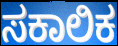
ಸಕಾಲಿಕ